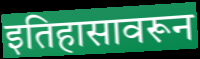
इतिहासावरून